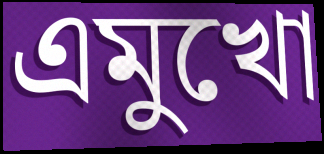
এমুখো